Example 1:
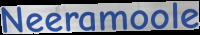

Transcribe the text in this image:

Neeramoole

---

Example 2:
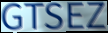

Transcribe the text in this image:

GTSEZ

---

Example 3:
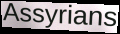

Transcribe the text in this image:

Assyrians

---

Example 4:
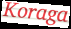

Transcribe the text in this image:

Koraga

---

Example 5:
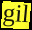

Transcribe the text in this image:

gil